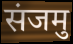
संजमु